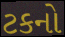
ટકનો